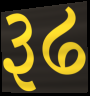
રૂઢ